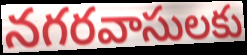
నగరవాసులకు